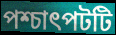
পশ্চাৎপটটি